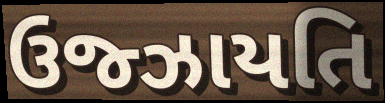
ઉજ્ઝાયતિ